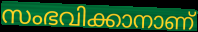
സംഭവിക്കാനാണ്